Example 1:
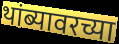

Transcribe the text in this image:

थांब्यावरच्या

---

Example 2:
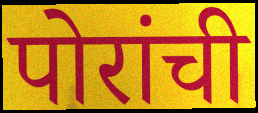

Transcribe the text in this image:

पोरांची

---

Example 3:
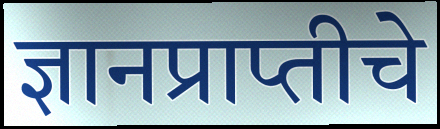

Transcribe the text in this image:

ज्ञानप्राप्तीचे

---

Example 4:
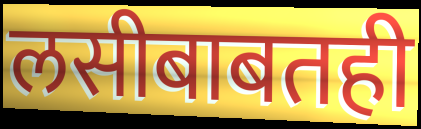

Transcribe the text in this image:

लसीबाबतही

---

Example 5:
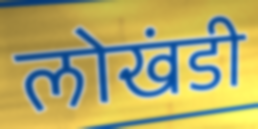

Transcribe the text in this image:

लोखंडी